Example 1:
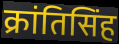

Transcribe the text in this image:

क्रांतिसिंह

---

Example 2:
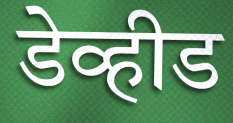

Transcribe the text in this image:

डेव्हीड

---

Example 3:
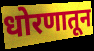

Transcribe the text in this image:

धोरणातून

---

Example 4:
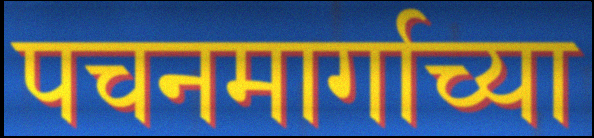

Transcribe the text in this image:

पचनमार्गाच्या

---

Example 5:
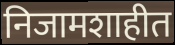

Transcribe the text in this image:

निजामशाहीत